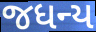
જધન્ય